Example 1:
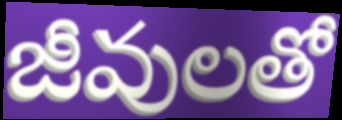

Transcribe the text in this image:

జీవులతో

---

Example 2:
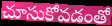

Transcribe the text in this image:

చూసుకోవడంతో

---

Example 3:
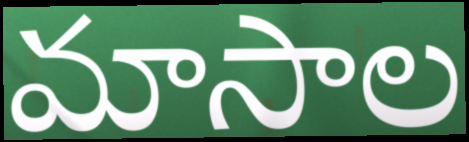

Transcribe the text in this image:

మాసాల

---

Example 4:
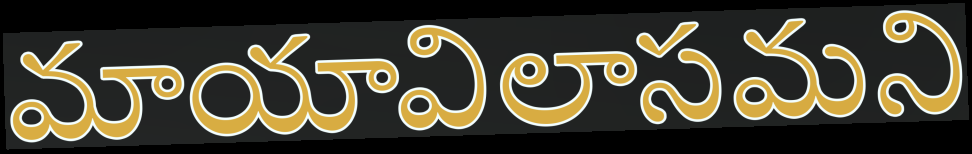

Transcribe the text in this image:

మాయావిలాసమని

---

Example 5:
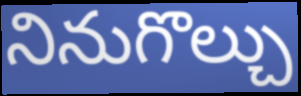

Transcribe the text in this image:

నినుగొల్చు